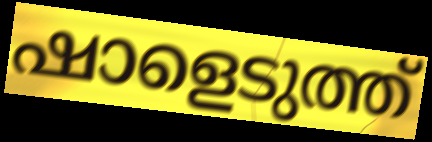
ഷാളെടുത്ത്